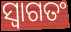
ସ୍ୱାଗତଂ